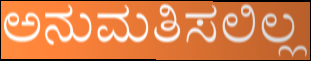
ಅನುಮತಿಸಲಿಲ್ಲ